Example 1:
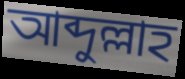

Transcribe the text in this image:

আব্দুল্লাহ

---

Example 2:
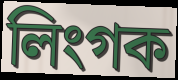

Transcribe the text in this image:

লিংগক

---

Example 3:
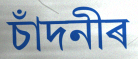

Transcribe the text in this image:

চাঁদনীৰ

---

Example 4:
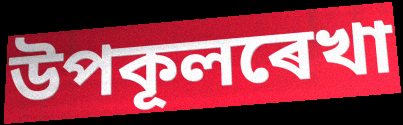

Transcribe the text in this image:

উপকূলৰেখা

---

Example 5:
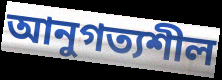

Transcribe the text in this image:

আনুগত্যশীল